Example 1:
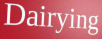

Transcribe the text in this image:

Dairying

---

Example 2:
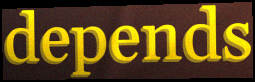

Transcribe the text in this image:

depends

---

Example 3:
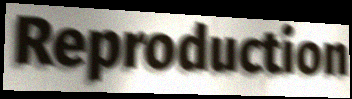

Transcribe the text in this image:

Reproduction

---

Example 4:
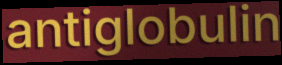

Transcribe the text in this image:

antiglobulin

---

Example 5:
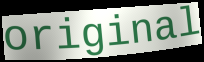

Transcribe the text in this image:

original